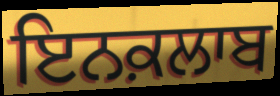
ਇਨਕ਼ਲਾਬ